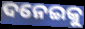
ଦନେଇକୁ